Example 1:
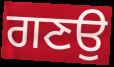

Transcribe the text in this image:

ਗਣਉ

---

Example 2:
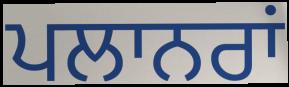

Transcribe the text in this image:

ਪਲਾਨਰਾਂ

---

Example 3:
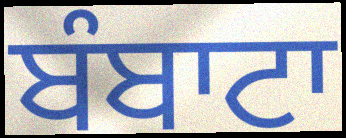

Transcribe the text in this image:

ਬੰਬਾਟਾ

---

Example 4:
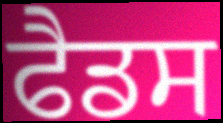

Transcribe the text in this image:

ਫੈਡਸ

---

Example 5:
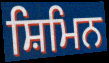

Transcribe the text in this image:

ਸ਼ਿਮਿਨ